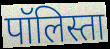
पॉलिस्ता